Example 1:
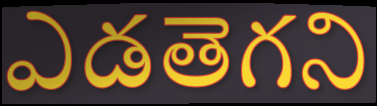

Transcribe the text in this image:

ఎడతెగని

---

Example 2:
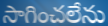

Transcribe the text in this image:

సాగించలేను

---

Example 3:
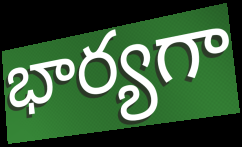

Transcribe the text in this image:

భార్యగా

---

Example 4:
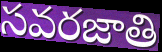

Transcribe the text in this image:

సవరజాతి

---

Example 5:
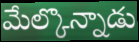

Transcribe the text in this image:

మేల్కొన్నాడు